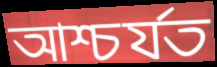
আশ্চৰ্যত